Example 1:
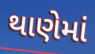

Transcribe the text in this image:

થાણેમાં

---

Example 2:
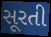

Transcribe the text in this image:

સૂરતી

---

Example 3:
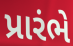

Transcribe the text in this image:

પ્રારંભે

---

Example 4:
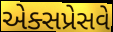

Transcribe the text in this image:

એક્સપ્રેસવે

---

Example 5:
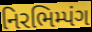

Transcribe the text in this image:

નિરભિમ્પંગ